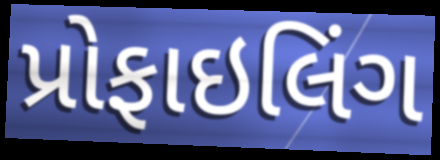
પ્રોફાઇલિંગ